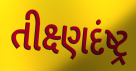
તીક્ષ્ણદંષ્ટ્ર